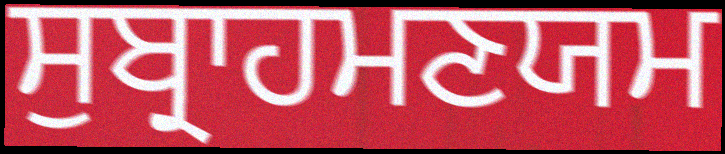
ਸੁਬ੍ਰਾਹਮਣਯਮ